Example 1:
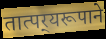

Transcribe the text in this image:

तात्पर्यरूपाने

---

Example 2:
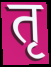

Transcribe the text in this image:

तृ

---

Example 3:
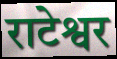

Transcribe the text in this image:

राटेश्वर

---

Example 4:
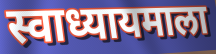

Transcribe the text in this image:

स्वाध्यायमाला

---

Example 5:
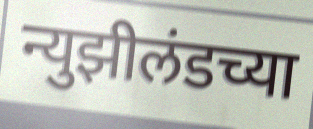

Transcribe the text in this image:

न्युझीलंडच्या